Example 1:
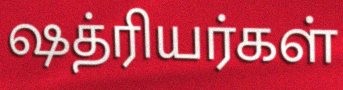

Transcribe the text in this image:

ஷத்ரியர்கள்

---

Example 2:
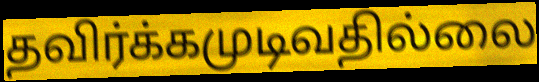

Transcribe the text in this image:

தவிர்க்கமுடிவதில்லை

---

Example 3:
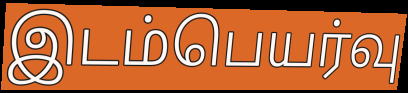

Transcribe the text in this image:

இடம்பெயர்வு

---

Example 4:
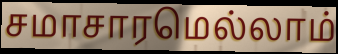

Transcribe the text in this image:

சமாசாரமெல்லாம்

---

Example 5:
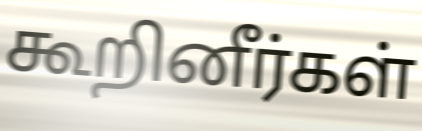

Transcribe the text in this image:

கூறினீர்கள்